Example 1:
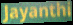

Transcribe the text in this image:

Jayanthi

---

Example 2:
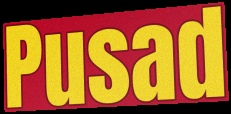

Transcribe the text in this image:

Pusad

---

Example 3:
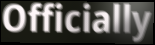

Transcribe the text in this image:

Officially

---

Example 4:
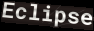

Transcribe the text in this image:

Eclipse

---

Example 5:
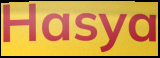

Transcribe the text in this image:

Hasya